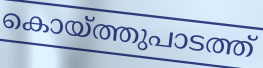
കൊയ്ത്തുപാടത്ത്